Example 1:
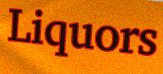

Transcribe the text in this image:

Liquors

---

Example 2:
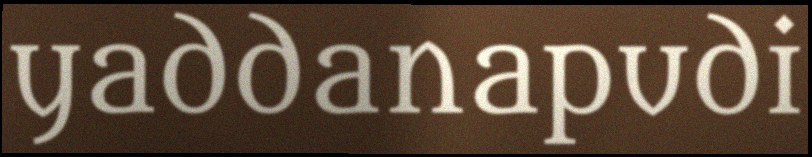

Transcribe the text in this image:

yaddanapudi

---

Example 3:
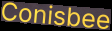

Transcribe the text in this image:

Conisbee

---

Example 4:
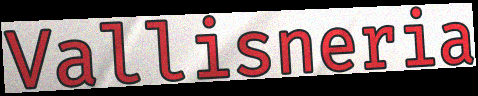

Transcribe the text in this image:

Vallisneria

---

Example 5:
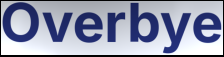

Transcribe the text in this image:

Overbye